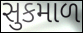
સુકમાળ